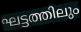
ഘട്ടത്തിലും